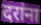
दरांना